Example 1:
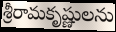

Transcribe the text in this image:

శ్రీరామకృష్ణులను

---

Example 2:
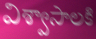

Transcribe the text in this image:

విశ్వాసాలకి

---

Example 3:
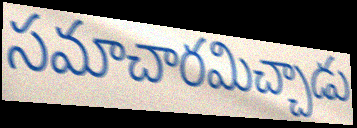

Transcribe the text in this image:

సమాచారమిచ్చాడు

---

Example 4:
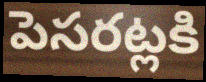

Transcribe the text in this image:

పెసరట్లకి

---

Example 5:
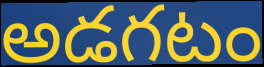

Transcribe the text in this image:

అడగటం